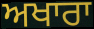
ਅਖਾਰਾ